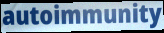
autoimmunity